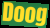
Doog